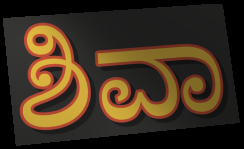
ಶಿವಾ